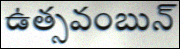
ఉత్సవంబున్